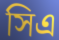
সিএ